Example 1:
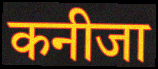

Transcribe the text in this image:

कनीजा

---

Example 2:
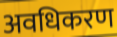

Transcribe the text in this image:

अवधिकरण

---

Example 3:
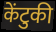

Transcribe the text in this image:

केंटुकी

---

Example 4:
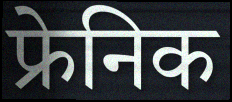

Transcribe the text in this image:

फ्रेनिक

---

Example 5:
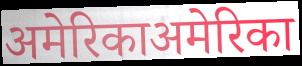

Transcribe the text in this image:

अमेरिकाअमेरिका